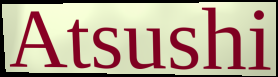
Atsushi